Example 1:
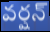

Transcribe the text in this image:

వర్షన్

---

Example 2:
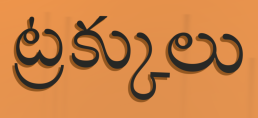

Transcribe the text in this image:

ట్రక్కులు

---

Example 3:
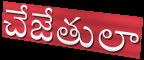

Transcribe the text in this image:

చేజేతులా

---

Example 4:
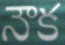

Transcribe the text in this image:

నౌక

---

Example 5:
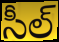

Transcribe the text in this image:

సీల్